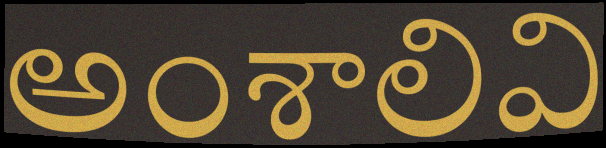
అంశాలివి